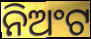
ନିଅଂଟ